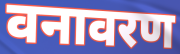
वनावरण